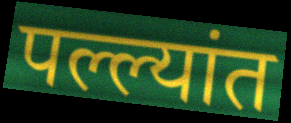
पल्ल्यांत